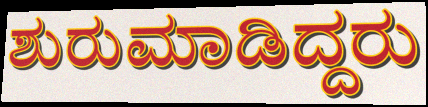
ಶುರುಮಾಡಿದ್ದರು